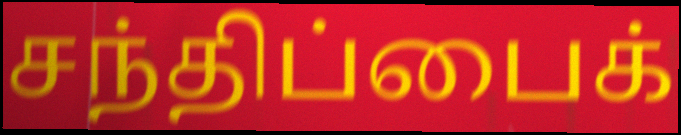
சந்திப்பைக்